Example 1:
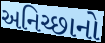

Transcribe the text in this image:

અનિચ્છાનો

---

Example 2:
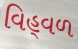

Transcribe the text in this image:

વિહ્‌વળ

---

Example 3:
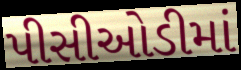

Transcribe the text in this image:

પીસીઓડીમાં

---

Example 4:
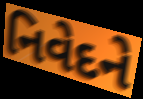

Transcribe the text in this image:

નિવેદને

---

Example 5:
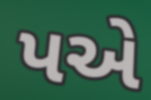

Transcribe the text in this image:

પએ